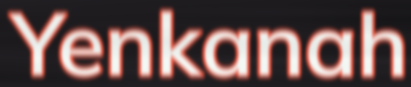
Yenkanah